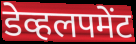
डेव्‍हलपमेंट